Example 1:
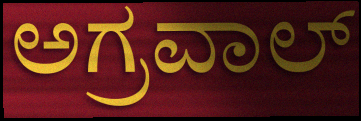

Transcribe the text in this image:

ಅಗ್ರವಾಲ್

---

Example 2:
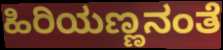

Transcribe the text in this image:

ಹಿರಿಯಣ್ಣನಂತೆ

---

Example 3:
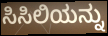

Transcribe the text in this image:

ಸಿಸಿಲಿಯನ್ನು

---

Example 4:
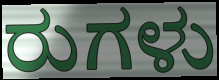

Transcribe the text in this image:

ರುಗಳು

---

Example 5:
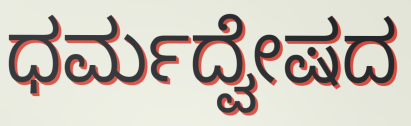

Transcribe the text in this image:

ಧರ್ಮದ್ವೇಷದ